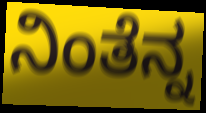
ನಿಂತೆನ್ನ